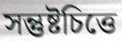
সন্তুষ্টচিত্তে